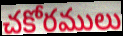
చకోరములు